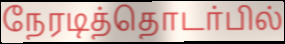
நேரடித்தொடர்பில்